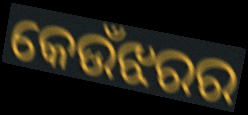
କେଉଁଝରର